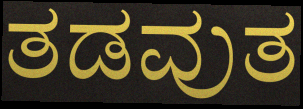
ತಡವುತ